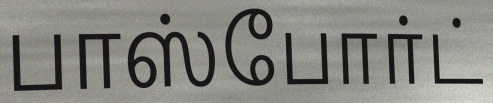
பாஸ்போர்ட்